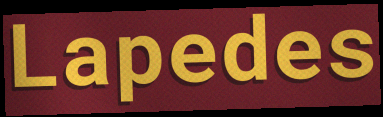
Lapedes